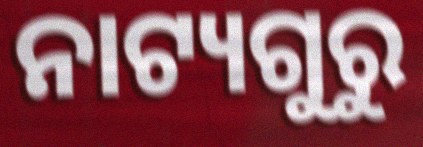
ନାଟ୍ୟଗୁରୁ